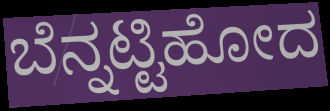
ಬೆನ್ನಟ್ಟಿಹೋದ